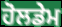
ਹੋਲਡੇਮ